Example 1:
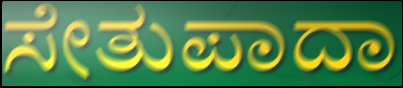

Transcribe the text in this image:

ಸೇತುಪಾದಾ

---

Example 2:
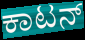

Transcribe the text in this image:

ಕಾಟನ್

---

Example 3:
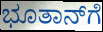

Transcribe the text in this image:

ಭೂತಾನ್‌ಗೆ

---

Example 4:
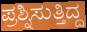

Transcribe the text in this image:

ಪ್ರಶ್ನಿಸುತ್ತಿದ್ದ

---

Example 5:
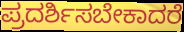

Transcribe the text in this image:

ಪ್ರದರ್ಶಿಸಬೇಕಾದರೆ